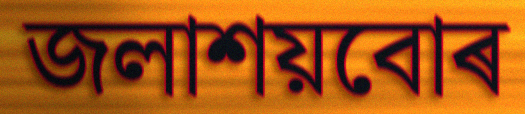
জলাশয়বোৰ